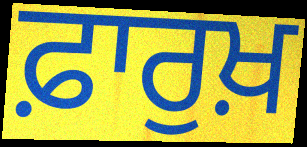
ਫ਼ਾਰੁਖ਼